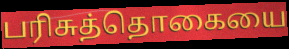
பரிசுத்தொகையை